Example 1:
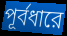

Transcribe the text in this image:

পূর্বধারে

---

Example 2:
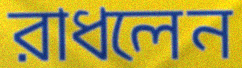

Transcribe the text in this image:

রাধলেন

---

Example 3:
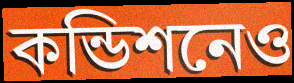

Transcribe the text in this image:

কন্ডিশনেও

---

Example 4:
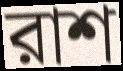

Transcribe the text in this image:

রাশ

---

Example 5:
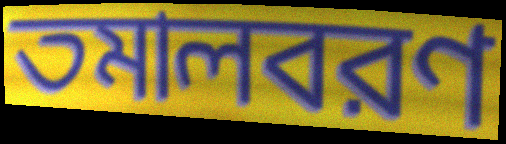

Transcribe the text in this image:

তমালবরণ